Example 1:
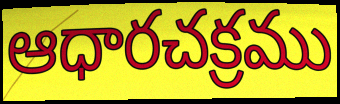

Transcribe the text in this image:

ఆధారచక్రము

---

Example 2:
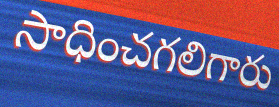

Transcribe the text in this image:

సాధించగలిగారు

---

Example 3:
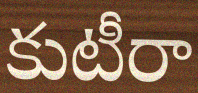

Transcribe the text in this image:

కుటీరా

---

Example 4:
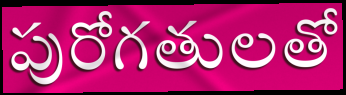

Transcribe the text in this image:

పురోగతులతో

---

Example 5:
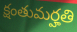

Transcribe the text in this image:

క్షంతుమర్హతి